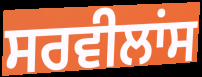
ਸਰਵੀਲਾਂਸ